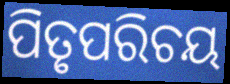
ପିତୃପରିଚୟ